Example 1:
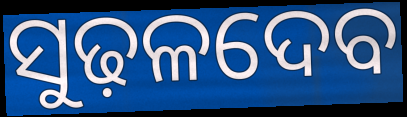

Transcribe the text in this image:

ସୁଢ଼ଳଦେବ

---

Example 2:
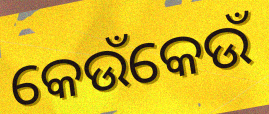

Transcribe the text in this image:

କେଉଁକେଉଁ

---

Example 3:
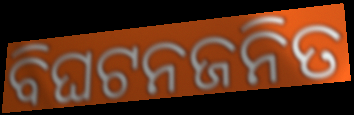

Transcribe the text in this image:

ବିଘଟନଜନିତ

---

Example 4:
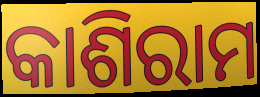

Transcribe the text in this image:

କାଶିରାମ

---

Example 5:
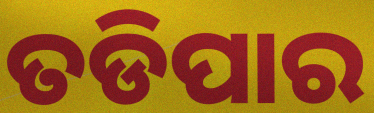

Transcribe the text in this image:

ତଡିପାର